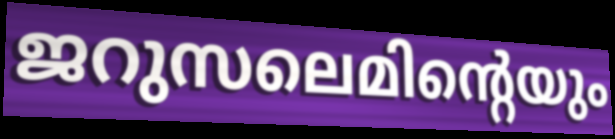
ജറുസലെമിന്റെയും